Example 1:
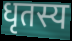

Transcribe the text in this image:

धृतस्य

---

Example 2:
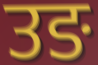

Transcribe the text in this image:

उङ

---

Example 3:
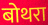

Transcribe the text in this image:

बोथरा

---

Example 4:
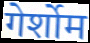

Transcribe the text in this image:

गेर्शोम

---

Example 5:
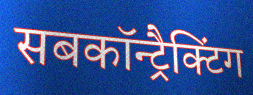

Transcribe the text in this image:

सबकॉन्ट्रैक्टिंग